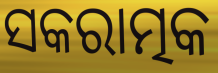
ସକରାତ୍ମକ